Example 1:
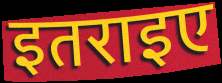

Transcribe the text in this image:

इतराइए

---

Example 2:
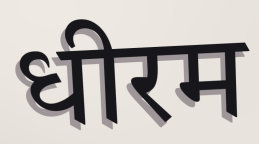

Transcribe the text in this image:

धीरम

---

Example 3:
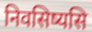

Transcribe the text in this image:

निवसिष्यसि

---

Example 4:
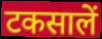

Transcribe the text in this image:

टकसालें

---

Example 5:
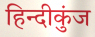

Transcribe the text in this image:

हिन्दीकुंज